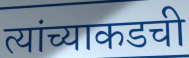
त्यांच्याकडची